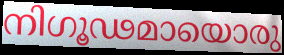
നിഗൂഢമായൊരു